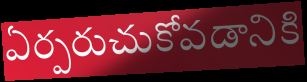
ఏర్పరుచుకోవడానికి